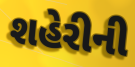
શહેરીની